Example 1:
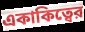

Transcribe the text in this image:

একাকিত্বের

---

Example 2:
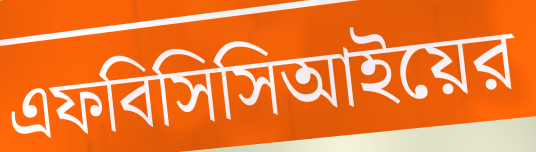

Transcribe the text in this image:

এফবিসিসিআইয়ের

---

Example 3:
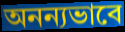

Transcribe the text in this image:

অনন্যভাবে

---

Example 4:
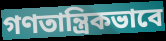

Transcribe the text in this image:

গণতান্ত্রিকভাবে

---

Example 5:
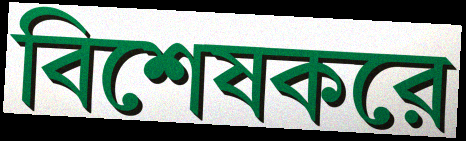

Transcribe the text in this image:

বিশেষকরে